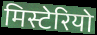
मिस्टेरियो